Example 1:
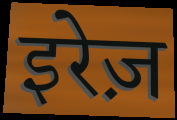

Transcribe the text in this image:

इरेज़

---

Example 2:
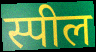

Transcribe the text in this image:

स्पील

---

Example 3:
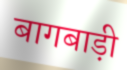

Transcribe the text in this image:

बागबाड़ी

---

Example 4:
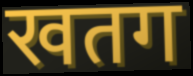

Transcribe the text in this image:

खतग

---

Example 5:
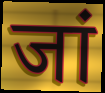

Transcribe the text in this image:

जां